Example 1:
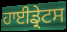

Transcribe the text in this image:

ਹਾਈਡ੍ਰੇਟਸ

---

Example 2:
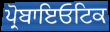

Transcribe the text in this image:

ਪ੍ਰੋਬਾਇਓਟਿਕ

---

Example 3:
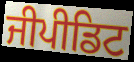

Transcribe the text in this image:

ਜੀਪੀਡਿਟ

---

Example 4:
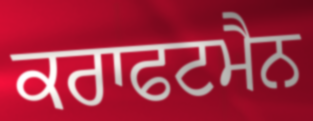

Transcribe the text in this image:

ਕਰਾਫਟਮੈਨ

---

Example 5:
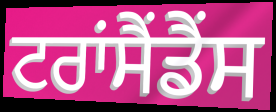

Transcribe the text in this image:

ਟਰਾਂਸੈਂਡੈਂਸ